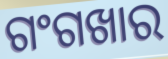
ଗଂଗଖାର